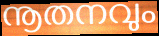
നൂതനവും